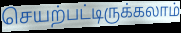
செயற்பட்டிருக்கலாம்